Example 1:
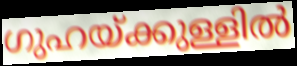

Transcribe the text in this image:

ഗുഹയ്ക്കുള്ളിൽ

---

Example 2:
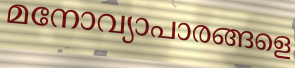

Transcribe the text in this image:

മനോവ്യാപാരങ്ങളെ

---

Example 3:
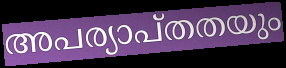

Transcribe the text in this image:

അപര്യാപ്തതയും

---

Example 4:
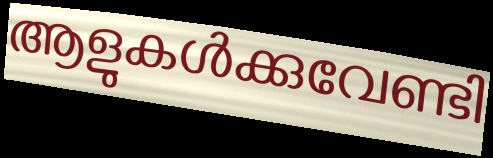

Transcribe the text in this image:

ആളുകൾക്കുവേണ്ടി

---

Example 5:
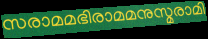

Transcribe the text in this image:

സരാമമഭിരാമമനുസ്മരാമി